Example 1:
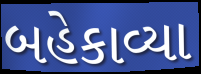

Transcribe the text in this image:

બહેકાવ્યા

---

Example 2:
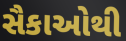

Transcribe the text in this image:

સૈકાઓથી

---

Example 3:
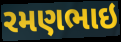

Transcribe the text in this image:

રમણભાઇ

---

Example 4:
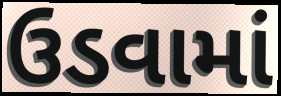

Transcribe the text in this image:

ઉડવામાં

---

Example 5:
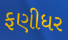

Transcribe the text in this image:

ફણીધર